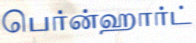
பெர்ன்ஹார்ட்